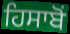
ਹਿਸਾਬੋਂ